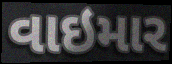
વાઇમાર